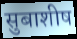
सुबाशीष